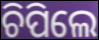
ଚିପିଲେ